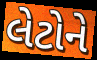
લેટોને